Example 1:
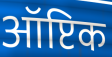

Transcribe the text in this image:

ऑप्टिक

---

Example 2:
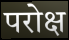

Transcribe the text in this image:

परोक्ष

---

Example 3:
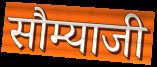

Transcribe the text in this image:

सौम्याजी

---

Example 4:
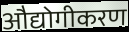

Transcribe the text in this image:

औद्योगीकरण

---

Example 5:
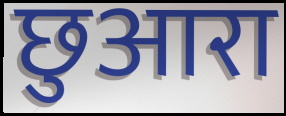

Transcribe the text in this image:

छुआरा